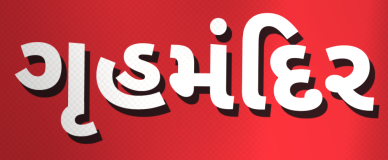
ગૃહમંદિર